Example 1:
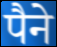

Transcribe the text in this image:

पैने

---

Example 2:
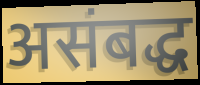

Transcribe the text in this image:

असंबद्ध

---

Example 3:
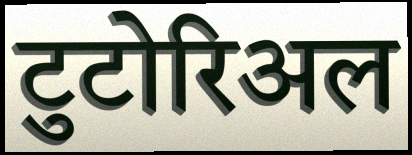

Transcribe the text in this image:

टुटोरिअल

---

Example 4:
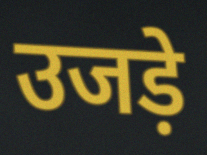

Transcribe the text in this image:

उजड़े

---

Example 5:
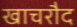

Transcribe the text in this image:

खाचरौद